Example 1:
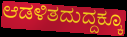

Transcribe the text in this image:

ಆಡಳಿತದುದ್ದಕ್ಕೂ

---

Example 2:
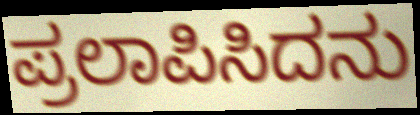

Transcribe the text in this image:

ಪ್ರಲಾಪಿಸಿದನು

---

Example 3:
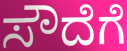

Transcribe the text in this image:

ಸೌದೆಗೆ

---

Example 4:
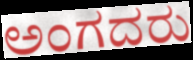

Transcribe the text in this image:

ಅಂಗದರು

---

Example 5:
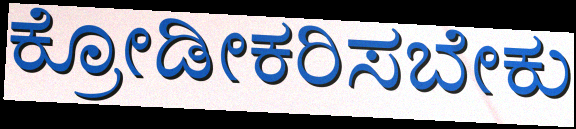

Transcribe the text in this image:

ಕ್ರೋಡೀಕರಿಸಬೇಕು